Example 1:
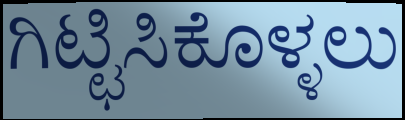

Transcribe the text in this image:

ಗಿಟ್ಟಿಸಿಕೊಳ್ಳಲು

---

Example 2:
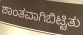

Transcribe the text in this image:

ಶಾಂತವಾಗಿಬಿಟ್ಟಿತು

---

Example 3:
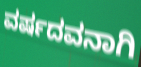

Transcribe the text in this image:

ವರ್ಷದವನಾಗಿ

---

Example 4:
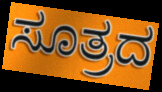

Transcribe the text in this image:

ಸೂತ್ರದ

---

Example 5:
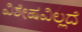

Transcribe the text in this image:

ವಿಶೇಷವಿಲ್ಲದೆ